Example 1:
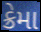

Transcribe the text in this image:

ક્રેમા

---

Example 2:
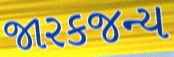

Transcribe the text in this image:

જારકજન્ય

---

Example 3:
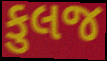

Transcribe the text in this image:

કુલજ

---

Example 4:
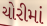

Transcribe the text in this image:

ચોરીમાં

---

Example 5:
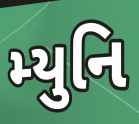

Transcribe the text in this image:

મ્યુનિ